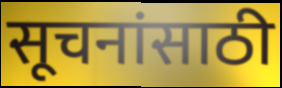
सूचनांसाठी